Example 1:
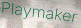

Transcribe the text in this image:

Playmaker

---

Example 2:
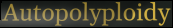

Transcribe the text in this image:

Autopolyploidy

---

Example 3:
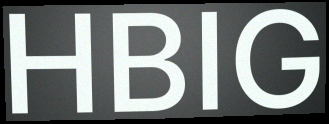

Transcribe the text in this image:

HBIG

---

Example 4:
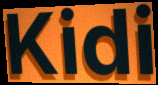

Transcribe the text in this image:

Kidi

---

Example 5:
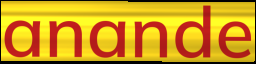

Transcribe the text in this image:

anande